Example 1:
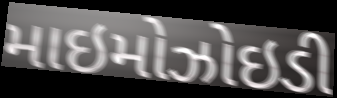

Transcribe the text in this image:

માઇમોઝોઇડી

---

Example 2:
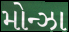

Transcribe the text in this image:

મોન્ઝા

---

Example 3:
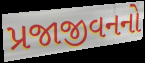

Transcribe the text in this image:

પ્રજાજીવનનો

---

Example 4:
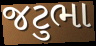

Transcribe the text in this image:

જટુભા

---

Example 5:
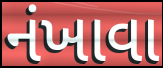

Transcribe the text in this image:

નંખાવા